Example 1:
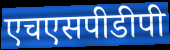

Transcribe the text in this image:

एचएसपीडीपी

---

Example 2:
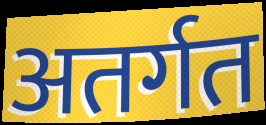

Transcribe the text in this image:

अतर्गत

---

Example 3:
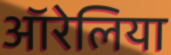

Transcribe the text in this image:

ऑरेलिया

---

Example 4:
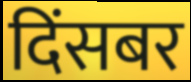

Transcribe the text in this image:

दिंसबर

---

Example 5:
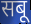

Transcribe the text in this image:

सबू